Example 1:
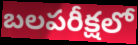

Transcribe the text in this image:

బలపరీక్షలో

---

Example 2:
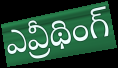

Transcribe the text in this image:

ఎవ్రీథింగ్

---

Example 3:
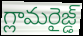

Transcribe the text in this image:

గ్లామరైజ్డ్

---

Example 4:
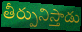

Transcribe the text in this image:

తీర్పునిస్తాడు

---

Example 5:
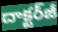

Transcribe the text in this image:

దాక్టర్‌జీ